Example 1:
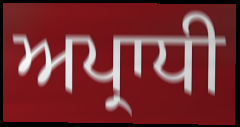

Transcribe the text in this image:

ਅਪ੍ਰਾਧੀ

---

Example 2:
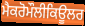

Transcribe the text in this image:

ਮੈਕਰੋਮੌਲੀਕਿਊਲਰ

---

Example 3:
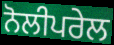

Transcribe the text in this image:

ਨੋਲੀਪਰੇਲ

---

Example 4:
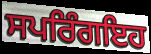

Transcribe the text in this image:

ਸਪਰਿੰਗਇਹ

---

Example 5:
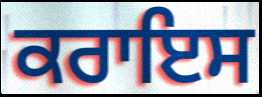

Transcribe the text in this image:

ਕਰਾਇਸ